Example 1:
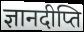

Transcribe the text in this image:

ज्ञानदीप्ति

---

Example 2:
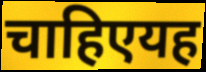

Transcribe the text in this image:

चाहिएयह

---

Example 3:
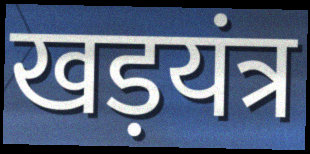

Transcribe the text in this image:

खड़यंत्र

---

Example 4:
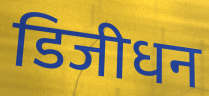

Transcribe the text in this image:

डिजीधन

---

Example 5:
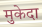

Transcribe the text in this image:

मुकेदा